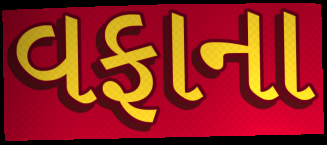
વફાના